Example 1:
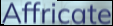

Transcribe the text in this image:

Affricate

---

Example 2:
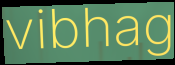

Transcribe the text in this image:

vibhag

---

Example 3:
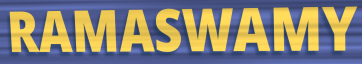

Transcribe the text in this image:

RAMASWAMY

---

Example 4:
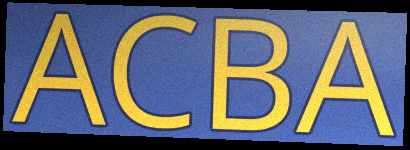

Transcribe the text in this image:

ACBA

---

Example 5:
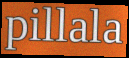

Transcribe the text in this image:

pillala